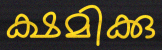
ക്ഷമിക്കു